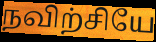
நவிற்சியே